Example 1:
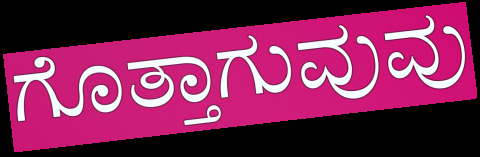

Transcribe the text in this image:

ಗೊತ್ತಾಗುವುವು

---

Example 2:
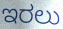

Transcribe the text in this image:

ಇರಲು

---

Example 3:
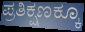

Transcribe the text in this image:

ಪ್ರತಿಕ್ಷಣಕ್ಕೂ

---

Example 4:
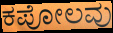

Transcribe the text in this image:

ಕಪೋಲವು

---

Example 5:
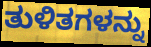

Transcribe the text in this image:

ತುಳಿತಗಳನ್ನು